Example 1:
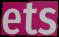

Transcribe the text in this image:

ets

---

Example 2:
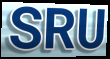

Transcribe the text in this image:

SRU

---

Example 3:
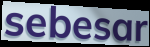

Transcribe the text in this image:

sebesar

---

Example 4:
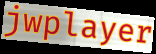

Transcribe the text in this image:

jwplayer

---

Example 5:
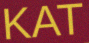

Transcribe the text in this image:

KAT